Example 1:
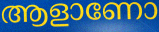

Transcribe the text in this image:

ആളാണോ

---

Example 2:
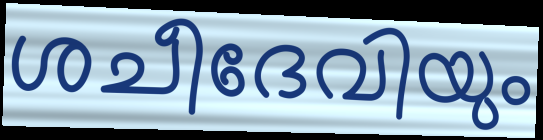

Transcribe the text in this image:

ശചീദേവിയും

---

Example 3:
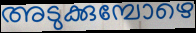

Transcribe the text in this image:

അടുക്കുമ്പോഴെ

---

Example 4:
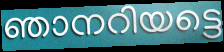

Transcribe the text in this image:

ഞാനറിയട്ടെ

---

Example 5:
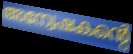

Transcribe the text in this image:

അന്വേഷകന്റെ